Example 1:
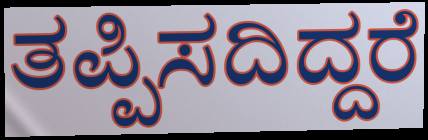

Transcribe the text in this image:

ತಪ್ಪಿಸದಿದ್ದರೆ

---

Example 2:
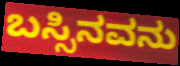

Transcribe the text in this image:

ಬಸ್ಸಿನವನು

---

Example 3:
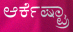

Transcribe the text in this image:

ಆರ್ಕೆಷ್ಟ್ರಾ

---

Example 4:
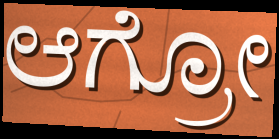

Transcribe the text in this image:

ಆಗ್ರೋ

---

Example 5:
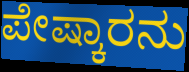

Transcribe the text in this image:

ಪೇಷ್ಕಾರನು